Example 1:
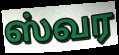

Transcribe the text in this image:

ஸ்வர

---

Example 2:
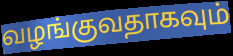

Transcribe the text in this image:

வழங்குவதாகவும்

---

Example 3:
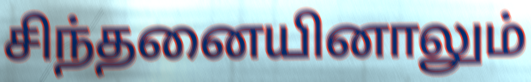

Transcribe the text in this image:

சிந்தனையினாலும்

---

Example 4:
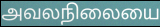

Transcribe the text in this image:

அவலநிலையை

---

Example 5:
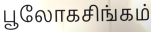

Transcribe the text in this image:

பூலோகசிங்கம்